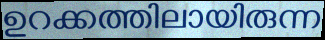
ഉറക്കത്തിലായിരുന്ന